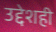
उद्देशही